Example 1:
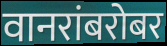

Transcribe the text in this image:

वानरांबरोबर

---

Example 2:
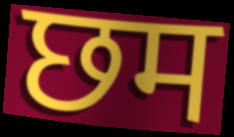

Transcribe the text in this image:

छम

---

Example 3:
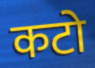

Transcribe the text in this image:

कटो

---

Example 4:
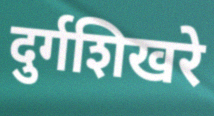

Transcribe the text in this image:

दुर्गशिखरे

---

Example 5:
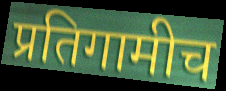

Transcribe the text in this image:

प्रतिगामीच